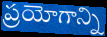
ప్రయోగాన్ని